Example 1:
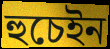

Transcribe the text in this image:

হুচেইন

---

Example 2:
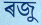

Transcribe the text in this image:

ৰজু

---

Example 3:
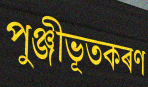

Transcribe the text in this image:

পুঞ্জীভূতকৰণ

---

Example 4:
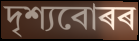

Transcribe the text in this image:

দৃশ্যবোৰৰ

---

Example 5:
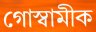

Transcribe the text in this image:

গোস্বামীক